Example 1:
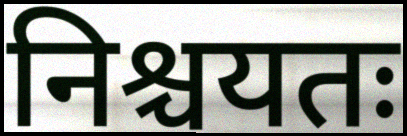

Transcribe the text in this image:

निश्चयतः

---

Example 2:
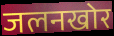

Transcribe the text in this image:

जलनखोर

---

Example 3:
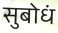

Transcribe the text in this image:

सुबोधं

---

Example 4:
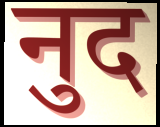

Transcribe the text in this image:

नुद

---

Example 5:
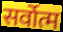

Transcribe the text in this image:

सर्वोत्म